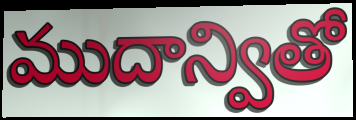
ముదాన్వితో